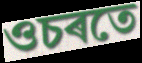
ওচৰতে